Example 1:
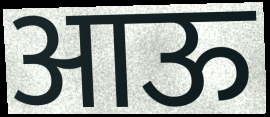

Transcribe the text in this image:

आऊ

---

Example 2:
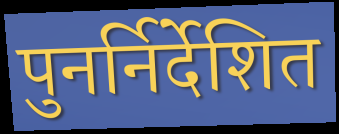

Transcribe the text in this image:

पुनर्निर्देशित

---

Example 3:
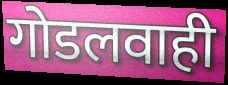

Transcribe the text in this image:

गोडलवाही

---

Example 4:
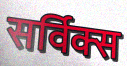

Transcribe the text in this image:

सर्विक्स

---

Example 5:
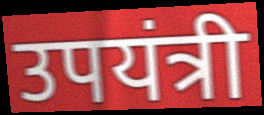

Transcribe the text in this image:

उपयंत्री